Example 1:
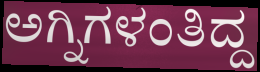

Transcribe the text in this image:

ಅಗ್ನಿಗಳಂತಿದ್ದ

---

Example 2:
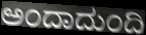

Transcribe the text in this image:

ಅಂದಾದುಂದಿ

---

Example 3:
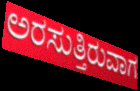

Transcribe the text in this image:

ಅರಸುತ್ತಿರುವಾಗ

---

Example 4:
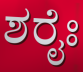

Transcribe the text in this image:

ಶರೈಃ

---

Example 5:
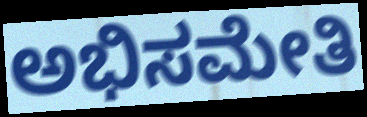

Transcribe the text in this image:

ಅಭಿಸಮೇತಿ